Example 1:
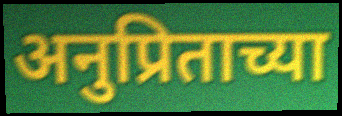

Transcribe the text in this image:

अनुप्रिताच्या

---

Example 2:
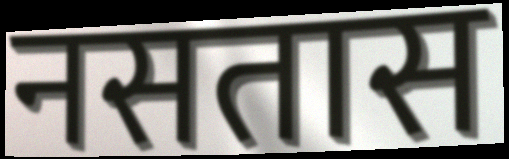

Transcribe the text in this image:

नसतास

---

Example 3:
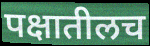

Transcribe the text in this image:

पक्षातीलच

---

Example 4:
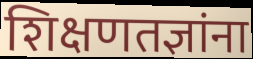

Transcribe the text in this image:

शिक्षणतज्ञांना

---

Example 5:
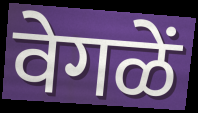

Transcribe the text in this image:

वेगळें